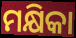
ମକ୍ଷିକା